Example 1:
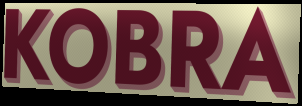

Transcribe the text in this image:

KOBRA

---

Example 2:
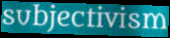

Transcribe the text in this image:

subjectivism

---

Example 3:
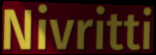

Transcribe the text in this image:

Nivritti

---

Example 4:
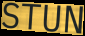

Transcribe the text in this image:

STUN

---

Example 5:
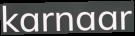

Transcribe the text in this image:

karnaar